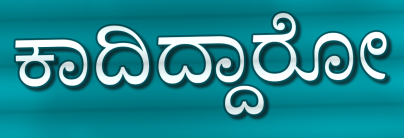
ಕಾದಿದ್ದಾರೋ